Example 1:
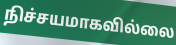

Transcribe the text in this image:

நிச்சயமாகவில்லை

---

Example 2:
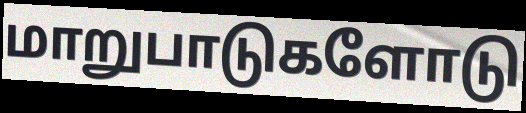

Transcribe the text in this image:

மாறுபாடுகளோடு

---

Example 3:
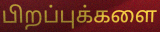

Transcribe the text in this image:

பிறப்புக்களை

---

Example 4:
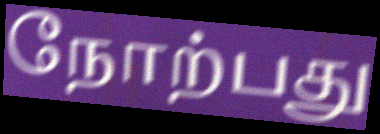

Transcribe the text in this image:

நோற்பது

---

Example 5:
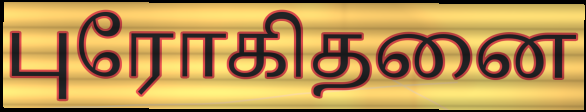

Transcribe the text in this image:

புரோகிதனை